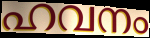
ഹവനം